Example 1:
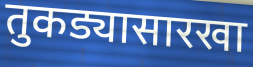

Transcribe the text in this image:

तुकड्यासारखा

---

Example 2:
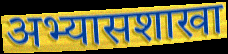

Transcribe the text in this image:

अभ्यासशाखा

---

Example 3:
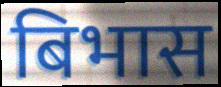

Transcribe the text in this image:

बिभास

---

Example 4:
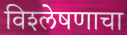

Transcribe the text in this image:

विश्‍लेषणाचा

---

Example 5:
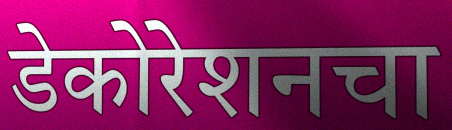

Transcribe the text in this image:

डेकोरेशनचा